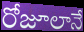
రోజూలానే